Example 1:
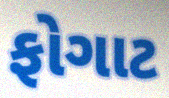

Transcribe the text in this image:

ફોગાટ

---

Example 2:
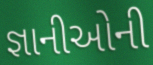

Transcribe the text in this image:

જ્ઞાનીઓની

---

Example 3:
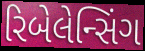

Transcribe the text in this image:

રિબેલેન્સિંગ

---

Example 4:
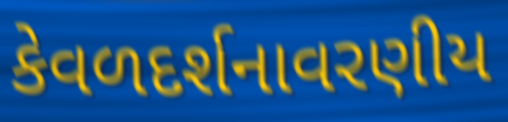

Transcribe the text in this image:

કેવળદર્શનાવરણીય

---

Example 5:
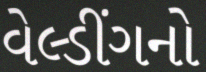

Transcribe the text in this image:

વેલ્ડીંગનો